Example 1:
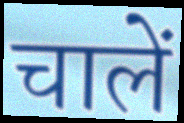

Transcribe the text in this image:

चालें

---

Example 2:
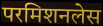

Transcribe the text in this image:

परमिशनलेस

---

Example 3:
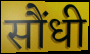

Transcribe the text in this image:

सौंधी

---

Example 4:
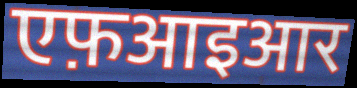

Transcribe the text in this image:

एफ़आइआर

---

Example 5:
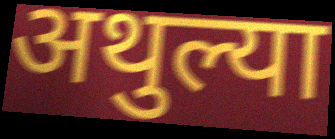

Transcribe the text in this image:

अथुल्या